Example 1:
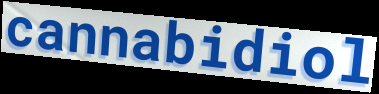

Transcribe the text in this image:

cannabidiol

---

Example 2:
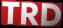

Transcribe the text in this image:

TRD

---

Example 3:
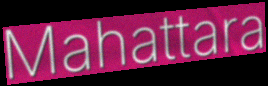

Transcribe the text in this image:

Mahattara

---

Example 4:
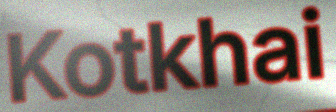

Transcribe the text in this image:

Kotkhai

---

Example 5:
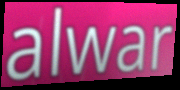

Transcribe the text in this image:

alwar